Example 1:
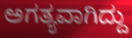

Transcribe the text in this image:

ಅಗತ್ಯವಾಗಿದ್ದು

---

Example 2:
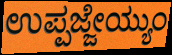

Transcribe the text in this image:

ಉಪ್ಪಜ್ಜೇಯ್ಯುಂ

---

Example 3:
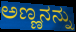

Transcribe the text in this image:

ಅಣ್ಣನನ್ನು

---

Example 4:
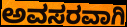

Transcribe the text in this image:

ಅವಸರವಾಗಿ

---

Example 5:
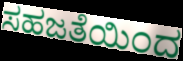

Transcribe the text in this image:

ಸಹಜತೆಯಿಂದ